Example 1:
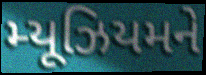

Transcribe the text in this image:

મ્યૂઝિયમને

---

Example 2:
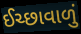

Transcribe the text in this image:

ઈચ્છાવાળું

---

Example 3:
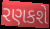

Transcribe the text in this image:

રણકશે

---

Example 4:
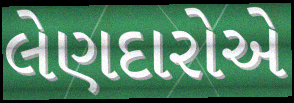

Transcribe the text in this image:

લેણદારોએ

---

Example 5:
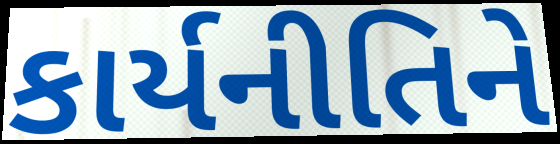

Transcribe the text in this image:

કાર્યનીતિને